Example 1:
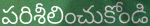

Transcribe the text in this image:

పరిశీలించుకోండి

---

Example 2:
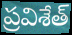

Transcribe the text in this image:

ప్రవిశేత్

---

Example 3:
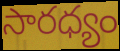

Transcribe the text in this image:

సారధ్యం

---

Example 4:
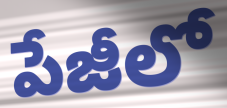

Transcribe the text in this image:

పేజీలో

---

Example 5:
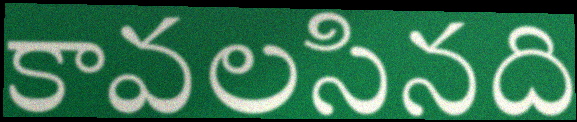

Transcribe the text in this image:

కావలసినది